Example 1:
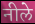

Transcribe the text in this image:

नीले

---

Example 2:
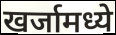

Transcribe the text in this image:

खर्जामध्ये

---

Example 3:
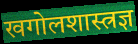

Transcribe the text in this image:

खगोलशास्त्रज्ञ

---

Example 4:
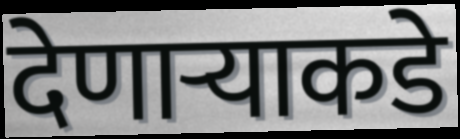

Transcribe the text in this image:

देणाऱ्याकडे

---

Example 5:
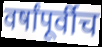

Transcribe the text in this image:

वर्षांपूर्वीच